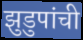
झुडुपांची